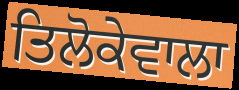
ਤਿਲੋਕੇਵਾਲਾ